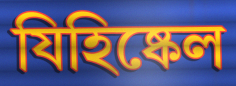
যিহিষ্কেল